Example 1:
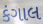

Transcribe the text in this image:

કંગાલ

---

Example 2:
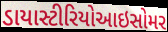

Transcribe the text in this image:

ડાયાસ્ટીરિયોઆઇસોમર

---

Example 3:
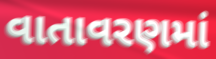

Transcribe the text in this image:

વાતાવરણમાં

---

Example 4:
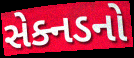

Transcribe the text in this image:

સેક્નડનો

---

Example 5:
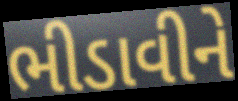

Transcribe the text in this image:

ભીડાવીને